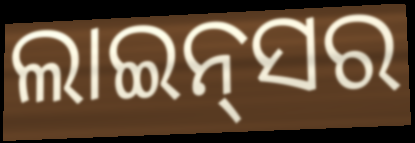
ଲାଇନ୍‍ସର